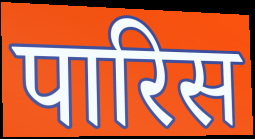
पारिस